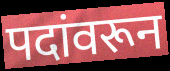
पदांवरून